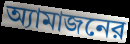
অ্যামাজনের